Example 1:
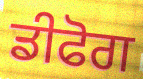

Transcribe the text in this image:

ਡੀਫੋਗ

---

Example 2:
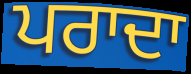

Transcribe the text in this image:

ਪਰਾਦਾ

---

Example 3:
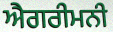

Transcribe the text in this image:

ਐਗਰੀਮਨੀ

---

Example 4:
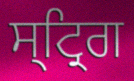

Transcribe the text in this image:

ਸ੍ਟ੍ਰਿਗ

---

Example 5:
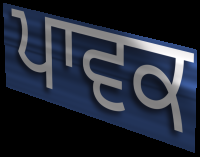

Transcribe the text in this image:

ਪਾਵਕ